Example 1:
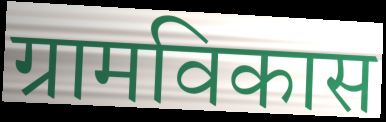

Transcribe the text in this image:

ग्रामविकास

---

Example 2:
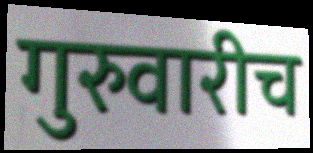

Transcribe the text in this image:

गुरुवारीच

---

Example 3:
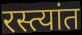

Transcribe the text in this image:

रस्त्यांत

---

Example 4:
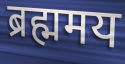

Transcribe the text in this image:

ब्रह्ममय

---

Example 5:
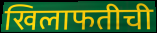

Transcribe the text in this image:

खिलाफतीची